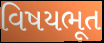
વિષયભૂત